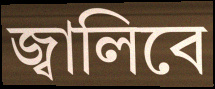
জ্বালিবে